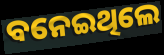
ବନେଇଥିଲେ